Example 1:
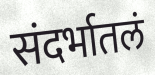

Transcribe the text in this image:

संदर्भातलं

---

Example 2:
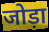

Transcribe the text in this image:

जोड़ा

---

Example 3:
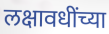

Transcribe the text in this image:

लक्षावधींच्या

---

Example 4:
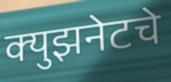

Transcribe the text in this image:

क्युझनेटचे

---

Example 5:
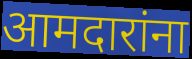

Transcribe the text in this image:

आमदारांना